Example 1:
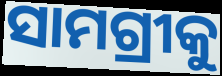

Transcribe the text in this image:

ସାମଗ୍ରୀକୁ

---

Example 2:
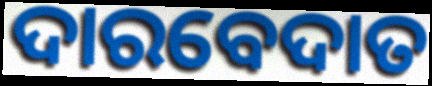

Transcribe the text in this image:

ଦାରବେଦାତ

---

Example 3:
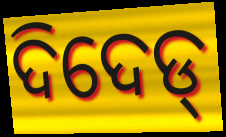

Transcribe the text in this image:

ଦିଦେଡ୍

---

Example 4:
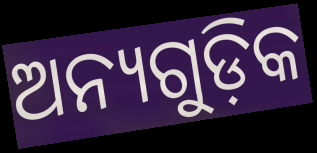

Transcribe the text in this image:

ଅନ୍ୟଗୁଡ଼ିକ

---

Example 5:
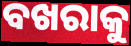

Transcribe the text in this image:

ବଖରାକୁ